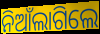
ନିଆଁଲାଗିଲେ